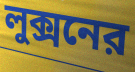
লুক্সনের